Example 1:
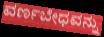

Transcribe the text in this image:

ವರ್ಣಬೇಧವನ್ನು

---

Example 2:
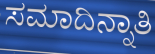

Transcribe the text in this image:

ಸಮಾದಿನ್ನಾತಿ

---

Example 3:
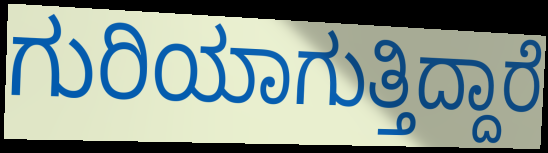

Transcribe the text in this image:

ಗುರಿಯಾಗುತ್ತಿದ್ದಾರೆ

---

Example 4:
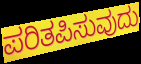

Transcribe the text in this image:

ಪರಿತಪಿಸುವುದು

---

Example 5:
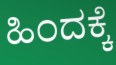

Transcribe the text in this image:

ಹಿಂದಕ್ಕೆ